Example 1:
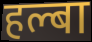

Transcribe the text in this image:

हल्बा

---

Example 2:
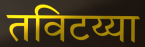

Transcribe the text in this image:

तविटय्या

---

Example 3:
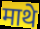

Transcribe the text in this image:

माथे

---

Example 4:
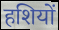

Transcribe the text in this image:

हशियों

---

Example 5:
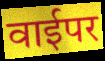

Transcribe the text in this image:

वाईपर